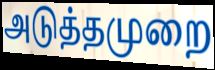
அடுத்தமுறை